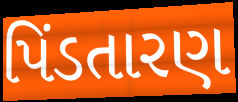
પિંડતારણ